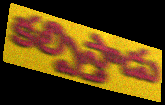
కల్పిస్తాడు